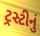
ટ્રસ્ટીનું